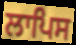
ਲਾਪਿਸ